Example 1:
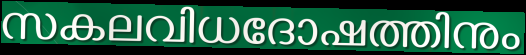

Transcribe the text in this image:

സകലവിധദോഷത്തിനും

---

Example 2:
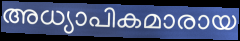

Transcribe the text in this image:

അധ്യാപികമാരായ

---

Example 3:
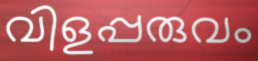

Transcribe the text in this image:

വിളപ്പരുവം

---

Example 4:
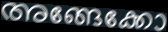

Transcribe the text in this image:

അങ്ങേക്കോ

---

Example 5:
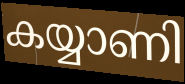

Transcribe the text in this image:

കയ്യാണി